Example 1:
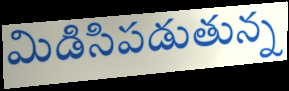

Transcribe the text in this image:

మిడిసిపడుతున్న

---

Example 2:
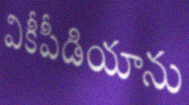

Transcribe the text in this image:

వికీపీడియాను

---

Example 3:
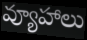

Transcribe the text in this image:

వ్యూహాలు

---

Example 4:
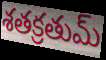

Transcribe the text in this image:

శతక్రతుమ్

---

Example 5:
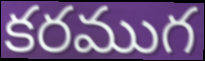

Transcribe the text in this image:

కరముగ